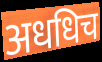
अधधिच